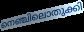
നെഞ്ചിലൊതുക്കി